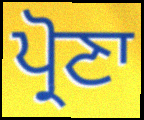
ਪ੍ਰੋਣਾ